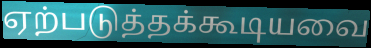
ஏற்படுத்தக்கூடியவை